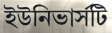
ইউনিভার্সটি